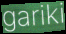
gariki